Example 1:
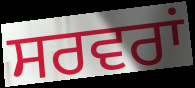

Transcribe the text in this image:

ਸਰਵਰਾਂ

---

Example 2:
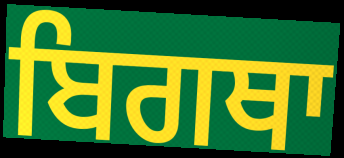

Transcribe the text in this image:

ਬਿਗਥਾ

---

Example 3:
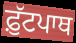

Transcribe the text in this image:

ਫ਼ੁੱਟਪਾਥ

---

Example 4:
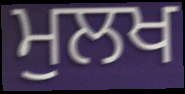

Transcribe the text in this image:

ਮੁਲਖ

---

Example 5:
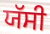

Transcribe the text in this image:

ਯੱਸੀ